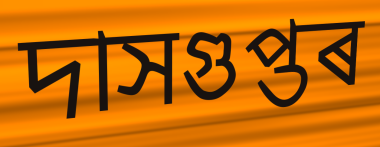
দাসগুপ্তৰ